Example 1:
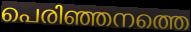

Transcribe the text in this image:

പെരിഞ്ഞനത്തെ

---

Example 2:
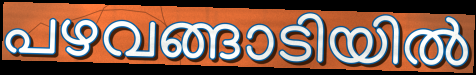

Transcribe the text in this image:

പഴവങ്ങാടിയിൽ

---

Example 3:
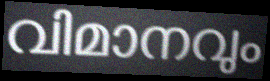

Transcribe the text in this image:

വിമാനവും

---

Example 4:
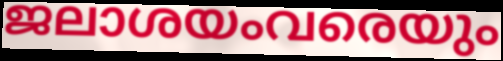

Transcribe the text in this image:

ജലാശയംവരെയും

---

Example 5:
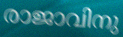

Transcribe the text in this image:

രാജാവിനു